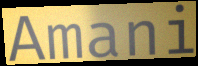
Amani